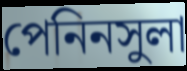
পেনিনসুলা